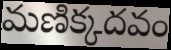
మణిక్కదవం